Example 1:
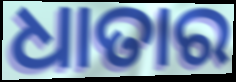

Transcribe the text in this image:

ଧାତାର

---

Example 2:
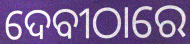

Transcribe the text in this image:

ଦେବୀଠାରେ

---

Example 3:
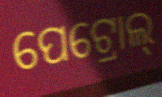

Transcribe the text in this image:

ପେଟ୍ରୋଲ୍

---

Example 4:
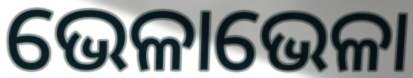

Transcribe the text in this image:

ଭେଳାଭେଳା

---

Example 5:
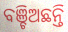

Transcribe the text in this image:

ବଞ୍ଚିଅଛନ୍ତି